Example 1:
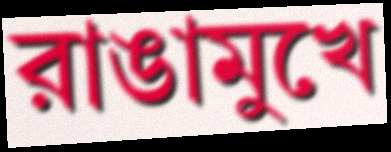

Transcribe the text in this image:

রাঙামুখে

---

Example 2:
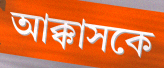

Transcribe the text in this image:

আক্কাসকে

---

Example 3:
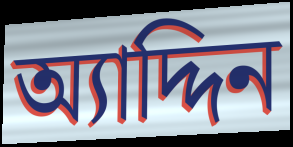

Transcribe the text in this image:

অ্যাদ্দিন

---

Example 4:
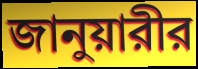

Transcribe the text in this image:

জানুয়ারীর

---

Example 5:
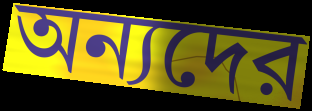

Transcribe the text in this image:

অন্যদের